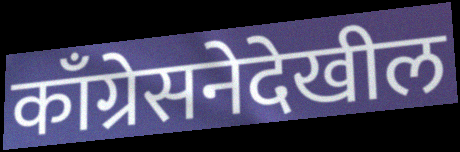
काँग्रेसनेदेखील